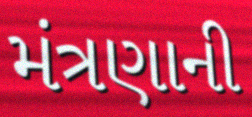
મંત્રણાની